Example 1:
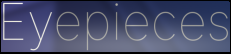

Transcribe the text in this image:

Eyepieces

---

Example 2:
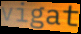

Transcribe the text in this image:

vigat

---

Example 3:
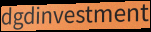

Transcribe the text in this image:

dgdinvestment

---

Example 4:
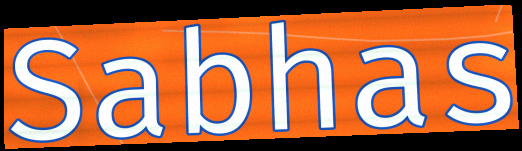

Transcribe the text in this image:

Sabhas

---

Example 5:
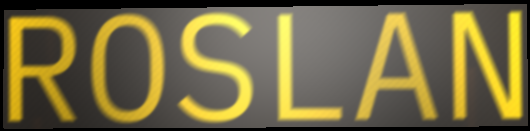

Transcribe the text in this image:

ROSLAN